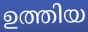
ഉത്തിയ